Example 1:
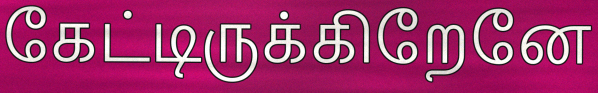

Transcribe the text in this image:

கேட்டிருக்கிறேனே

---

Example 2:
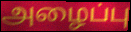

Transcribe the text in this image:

அழைப்பு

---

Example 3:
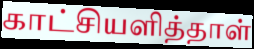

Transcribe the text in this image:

காட்சியளித்தாள்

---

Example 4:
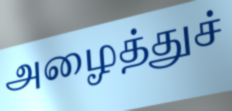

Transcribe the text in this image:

அழைத்துச்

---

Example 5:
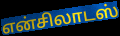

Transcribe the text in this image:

என்சிலாடஸ்